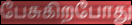
பேசுகிறபோது